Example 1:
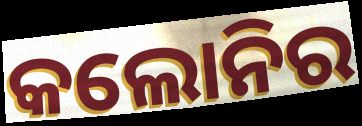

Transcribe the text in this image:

କଲୋନିର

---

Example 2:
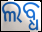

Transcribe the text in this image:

ଲବ୍ଧ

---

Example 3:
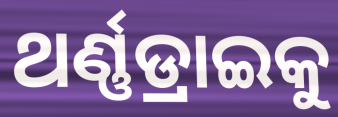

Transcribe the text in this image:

ଥର୍ଣ୍ଣଡ୍ରାଇକୁ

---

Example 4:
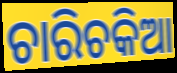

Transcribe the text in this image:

ଚାରିଚକିଆ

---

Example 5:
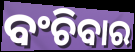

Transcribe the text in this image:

ବଂଚିବାର